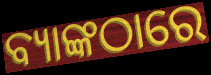
ବ୍ୟାଙ୍କଠାରେ